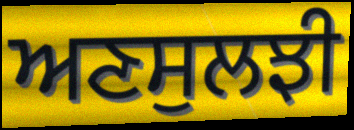
ਅਣਸੁਲਝੀ